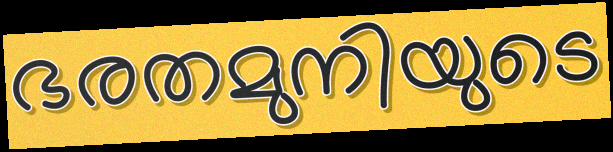
ഭരതമുനിയുടെ